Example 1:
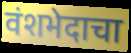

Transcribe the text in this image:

वंशभेदाचा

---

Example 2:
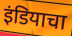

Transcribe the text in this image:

इंडियाचा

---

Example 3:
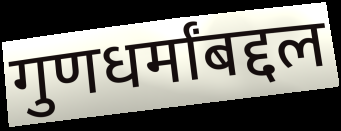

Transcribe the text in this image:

गुणधर्मांबद्दल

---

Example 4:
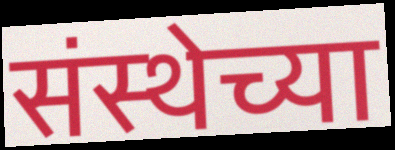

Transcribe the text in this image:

संस्थेच्या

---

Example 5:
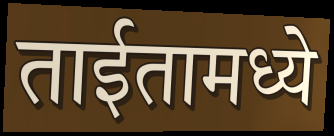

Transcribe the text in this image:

ताईतामध्ये